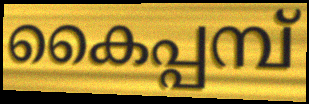
കൈപ്പമ്പ്